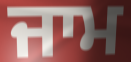
ਜਾਮ